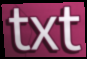
txt